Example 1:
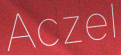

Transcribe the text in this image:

Aczel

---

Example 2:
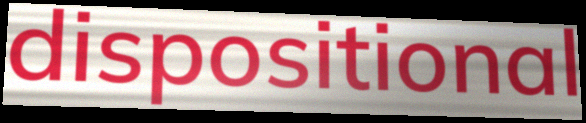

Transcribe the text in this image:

dispositional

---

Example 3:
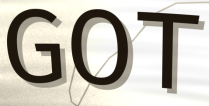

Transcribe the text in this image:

GOT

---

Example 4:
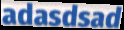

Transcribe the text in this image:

adasdsad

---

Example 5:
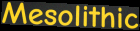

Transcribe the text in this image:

Mesolithic